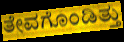
ತೇವಗೊಂಡಿತ್ತು